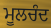
ਮੂਲਚੰਦ